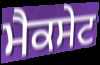
ਮੈਕਸੇਟ